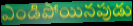
ఎండిపోయినపుడు